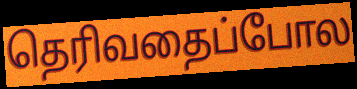
தெரிவதைப்போல